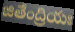
జితేంద్రియః